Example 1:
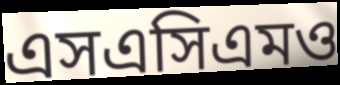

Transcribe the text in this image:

এসএসিএমও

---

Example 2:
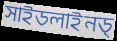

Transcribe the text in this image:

সাইডলাইনড্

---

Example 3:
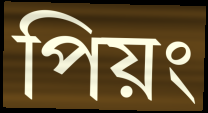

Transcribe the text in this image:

পিয়ং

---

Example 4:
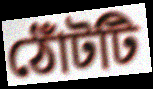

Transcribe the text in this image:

ঠোঁটটি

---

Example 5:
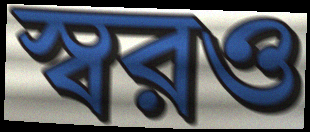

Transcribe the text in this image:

স্বরও